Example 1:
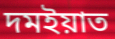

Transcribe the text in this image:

দমইয়াত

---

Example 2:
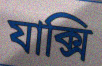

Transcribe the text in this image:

যাক্সি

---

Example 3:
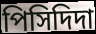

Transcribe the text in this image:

পিসিদিদা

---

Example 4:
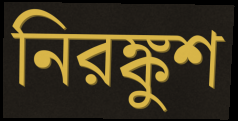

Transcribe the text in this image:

নিরঙ্কুশ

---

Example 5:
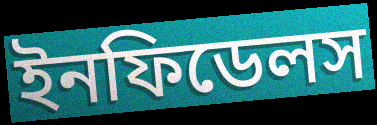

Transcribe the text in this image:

ইনফিডেলস